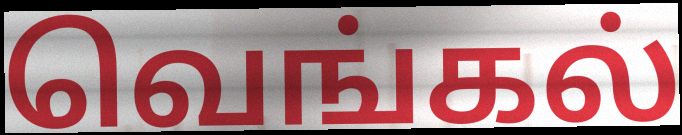
வெங்கல்